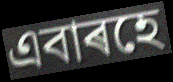
এবাৰহে